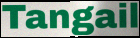
Tangail